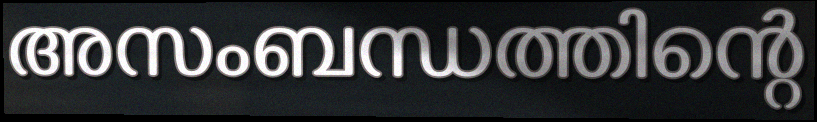
അസംബന്ധത്തിന്റെ